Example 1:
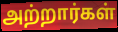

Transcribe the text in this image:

அற்றார்கள்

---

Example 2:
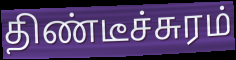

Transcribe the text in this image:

திண்டீச்சுரம்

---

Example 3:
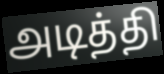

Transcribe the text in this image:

அடித்தி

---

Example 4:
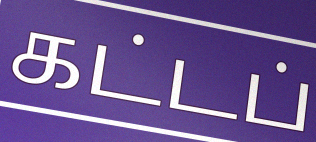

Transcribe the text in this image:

கட்டப்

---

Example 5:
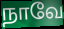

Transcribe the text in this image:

நாவே